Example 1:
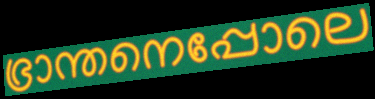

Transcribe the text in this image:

ഭ്രാന്തനെപ്പോലെ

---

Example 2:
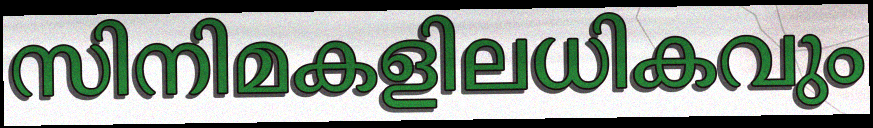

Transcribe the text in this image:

സിനിമകളിലധികവും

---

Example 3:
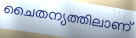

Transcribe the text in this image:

ചൈതന്യത്തിലാണ്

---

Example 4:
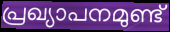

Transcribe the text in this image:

പ്രഖ്യാപനമുണ്ട്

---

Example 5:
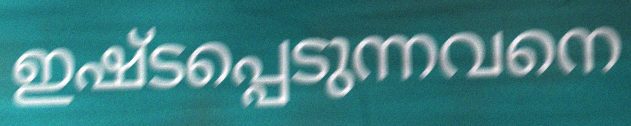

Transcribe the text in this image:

ഇഷ്ടപ്പെടുന്നവനെ